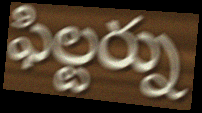
ఫిల్టర్ను